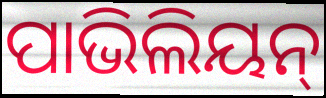
ପାଭିଲିୟନ୍